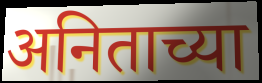
अनिताच्या